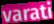
varati